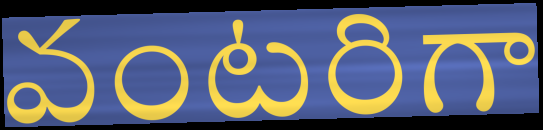
వంటరిగా